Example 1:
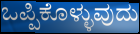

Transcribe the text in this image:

ಒಪ್ಪಿಕೊಳ್ಳುವುದು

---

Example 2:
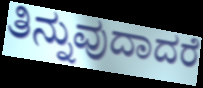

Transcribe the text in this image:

ತಿನ್ನುವುದಾದರೆ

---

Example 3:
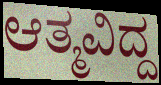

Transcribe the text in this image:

ಆತ್ಮವಿದ್ದ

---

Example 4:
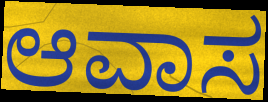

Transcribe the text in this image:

ಆವಾಸ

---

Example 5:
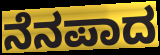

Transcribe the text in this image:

ನೆನಪಾದ